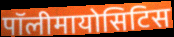
पॉलीमायोसिटिस